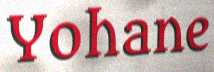
Yohane